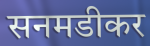
सनमडीकर